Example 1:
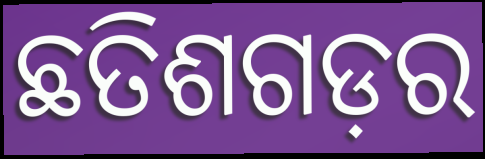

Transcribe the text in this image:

ଛତିଶଗଡ଼ର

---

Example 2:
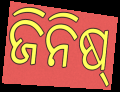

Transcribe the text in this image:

ଜିନିଷ୍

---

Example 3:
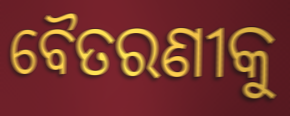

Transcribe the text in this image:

ବୈତରଣୀକୁ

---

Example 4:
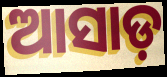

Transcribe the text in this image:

ଆସାଡ଼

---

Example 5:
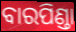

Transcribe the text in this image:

ବାରପିଣ୍ଡା